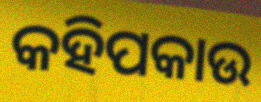
କହିପକାଉ